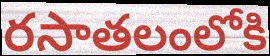
రసాతలంలోకి